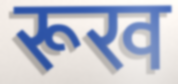
रूख